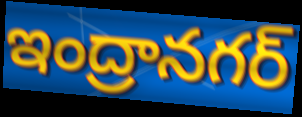
ఇంద్రానగర్